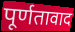
पूर्णतावाद